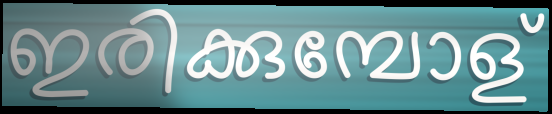
ഇരിക്കുമ്പോള്